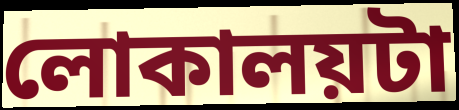
লোকালয়টা